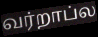
வர்றாப்ல